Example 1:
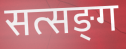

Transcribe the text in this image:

सत्सङ्ग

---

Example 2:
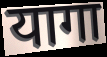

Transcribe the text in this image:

यागा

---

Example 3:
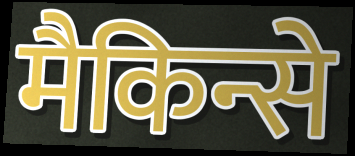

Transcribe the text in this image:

मैकिन्से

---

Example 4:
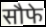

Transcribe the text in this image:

सौफे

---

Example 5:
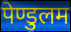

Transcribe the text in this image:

पेण्डुलम